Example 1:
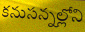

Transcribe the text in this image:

కనుసన్నల్లోని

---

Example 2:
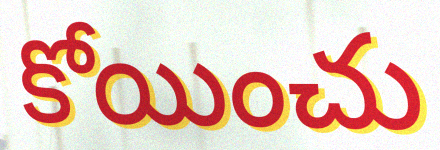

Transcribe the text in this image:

కోయించు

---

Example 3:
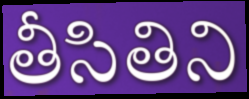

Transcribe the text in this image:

తీసితిని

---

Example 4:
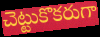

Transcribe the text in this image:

చెట్టుకొకరుగా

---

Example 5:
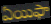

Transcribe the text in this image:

ఏయిఫా